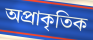
অপ্রাকৃতিক